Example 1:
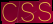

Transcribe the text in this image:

css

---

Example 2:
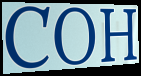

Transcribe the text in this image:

COH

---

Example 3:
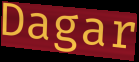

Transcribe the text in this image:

Dagar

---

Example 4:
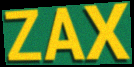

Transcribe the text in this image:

ZAX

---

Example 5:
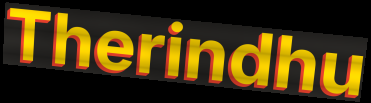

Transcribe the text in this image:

Therindhu